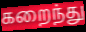
கறைந்து